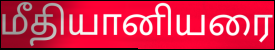
மீதியானியரை